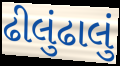
ઢીલુંઢાલું